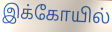
இக்கோயில்